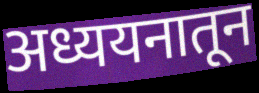
अध्ययनातून